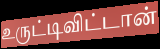
உருட்டிவிட்டான்